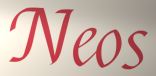
Neos